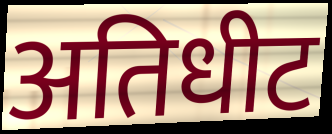
अतिधीट